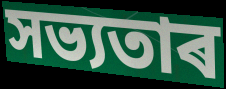
সভ্যতাৰ